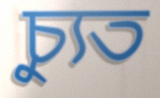
চ্যুত